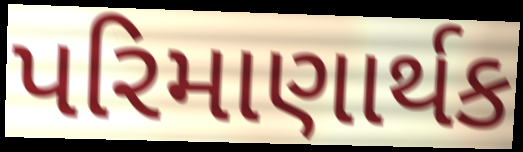
પરિમાણાર્થક